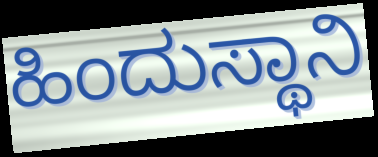
ಹಿಂದುಸ್ಥಾನಿ